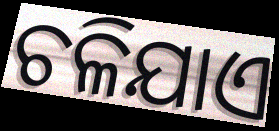
ଚଳିଯାଏ